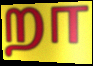
றா